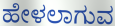
ಹೇಳಲಾಗುವ